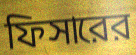
ফিসারের